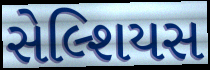
સેલ્શિયસ